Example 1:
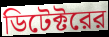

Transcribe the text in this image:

ডিটেক্টরের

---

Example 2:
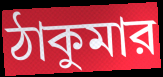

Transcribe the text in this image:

ঠাকুমার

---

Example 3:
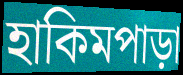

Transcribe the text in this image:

হাকিমপাড়া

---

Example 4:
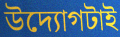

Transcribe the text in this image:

উদ্যোগটাই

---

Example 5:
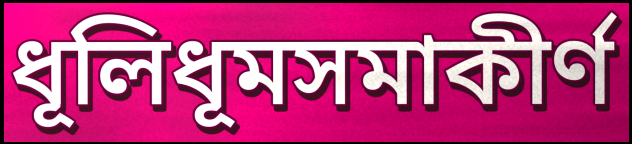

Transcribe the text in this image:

ধূলিধূমসমাকীর্ণ